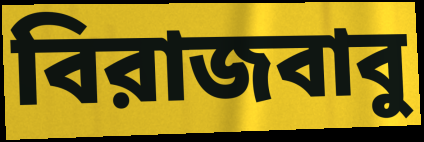
বিরাজবাবু